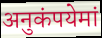
अनुकंपयेमां